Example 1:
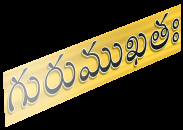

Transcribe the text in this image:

గురుముఖతః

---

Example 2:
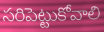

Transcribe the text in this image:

సరిపెట్టుకోవాలి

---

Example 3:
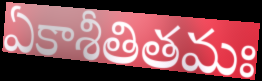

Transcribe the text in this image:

ఏకాశీతితమః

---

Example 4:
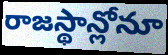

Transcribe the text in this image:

రాజస్థాన్లోనూ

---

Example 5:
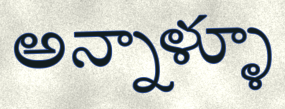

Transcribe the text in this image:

అన్నాళ్ళూ